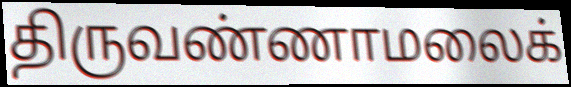
திருவண்ணாமலைக்